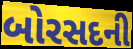
બોરસદની